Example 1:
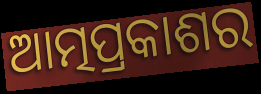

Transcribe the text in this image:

ଆତ୍ମପ୍ରକାଶର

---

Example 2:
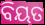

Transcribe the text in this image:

ବିୟତ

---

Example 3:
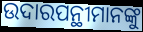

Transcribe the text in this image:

ଉଦାରପନ୍ଥୀମାନଙ୍କୁ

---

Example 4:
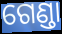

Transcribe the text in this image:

ଗେଣ୍ଡା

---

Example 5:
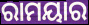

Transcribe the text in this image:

ରାମୟାର